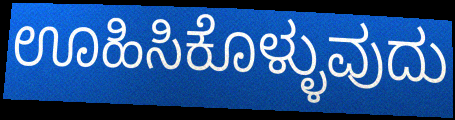
ಊಹಿಸಿಕೊಳ್ಳುವುದು